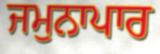
ਜਮੁਨਾਪਾਰ